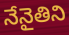
నేనైతిని